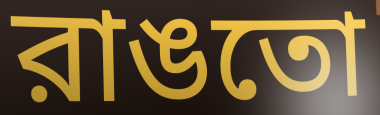
রাঙতো